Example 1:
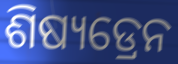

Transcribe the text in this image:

ଶିଷ୍ୟଡ୍ରେନ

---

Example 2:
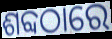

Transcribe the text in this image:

ଶବ୍ଦଠାରେ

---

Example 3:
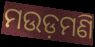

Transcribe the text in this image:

ମଉଡ଼ମଣି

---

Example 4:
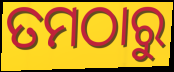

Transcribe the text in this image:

ତମଠାରୁ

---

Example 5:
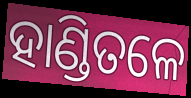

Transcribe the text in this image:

ହାଣ୍ଡିତଳେ